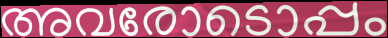
അവരോടൊപ്പം